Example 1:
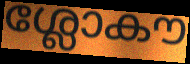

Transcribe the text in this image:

ശ്ലോകൗ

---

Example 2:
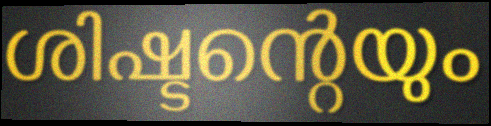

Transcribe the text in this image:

ശിഷ്ടന്റെയും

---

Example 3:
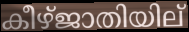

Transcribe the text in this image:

കീഴ്ജാതിയില്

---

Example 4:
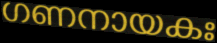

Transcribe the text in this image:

ഗണനായകഃ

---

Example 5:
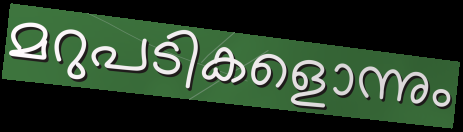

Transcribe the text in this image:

മറുപടികളൊന്നും